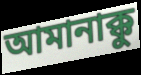
আমানাক্কু